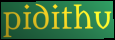
pidithu